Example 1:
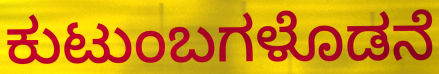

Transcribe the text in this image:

ಕುಟುಂಬಗಳೊಡನೆ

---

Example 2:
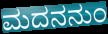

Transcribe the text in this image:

ಮದನನುಂ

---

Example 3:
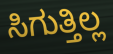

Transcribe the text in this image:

ಸಿಗುತ್ತಿಲ್ಲ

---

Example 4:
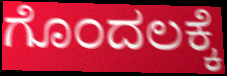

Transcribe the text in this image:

ಗೊಂದಲಕ್ಕೆ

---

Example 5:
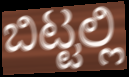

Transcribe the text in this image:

ಬಿಟ್ಟಲ್ಲಿ